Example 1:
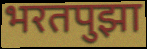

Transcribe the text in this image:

भरतपुझा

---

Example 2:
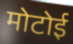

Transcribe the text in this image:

मोटोई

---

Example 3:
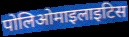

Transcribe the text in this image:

पोलिओमाइलाइटिस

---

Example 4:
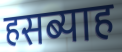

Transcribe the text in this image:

हसब्याह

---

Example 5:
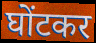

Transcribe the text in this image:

घोंटकर